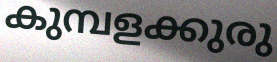
കുമ്പളക്കുരു